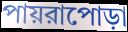
পায়রাপোড়া